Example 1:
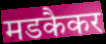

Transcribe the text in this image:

मडकैकर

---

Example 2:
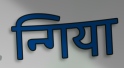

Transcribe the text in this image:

न्गिया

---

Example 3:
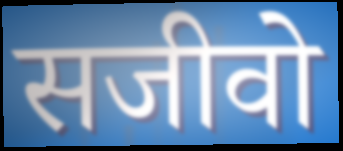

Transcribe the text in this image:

सजीवो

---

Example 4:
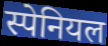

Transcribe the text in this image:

स्पेनियल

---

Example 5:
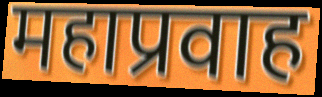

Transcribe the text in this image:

महाप्रवाह